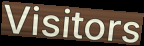
Visitors